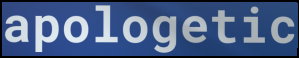
apologetic